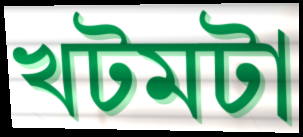
খটমটা